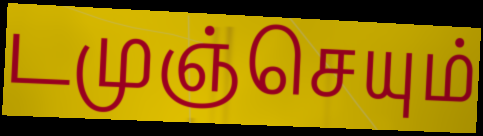
டமுஞ்செயும்